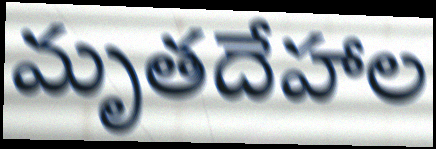
మృతదేహాల